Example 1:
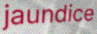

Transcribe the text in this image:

jaundice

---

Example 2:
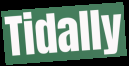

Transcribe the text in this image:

Tidally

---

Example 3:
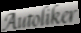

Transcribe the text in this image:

Autoliker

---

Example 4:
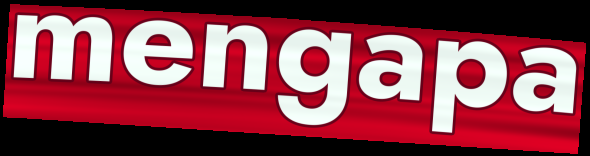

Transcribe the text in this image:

mengapa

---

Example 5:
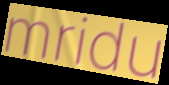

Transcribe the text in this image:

mridu